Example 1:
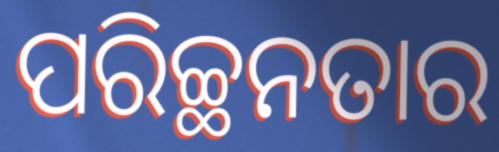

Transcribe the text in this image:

ପରିଚ୍ଛନତାର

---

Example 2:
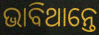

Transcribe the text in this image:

ଭାବିଥାନ୍ତେ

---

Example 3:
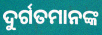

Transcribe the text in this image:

ଦୁର୍ଗତମାନଙ୍କ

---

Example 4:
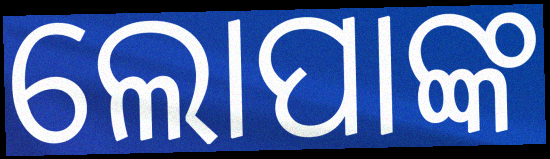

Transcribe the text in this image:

ଲୋପାଙ୍କ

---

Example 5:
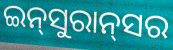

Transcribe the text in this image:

ଇନ୍‍ସୁରାନ୍‍ସର